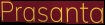
Prasanta